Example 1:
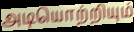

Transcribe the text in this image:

அடியொற்றியும்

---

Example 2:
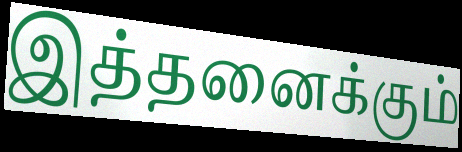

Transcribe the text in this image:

இத்தனைக்கும்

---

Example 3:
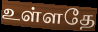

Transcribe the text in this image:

உள்ளதே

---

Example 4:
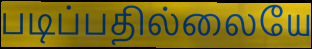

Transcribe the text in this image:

படிப்பதில்லையே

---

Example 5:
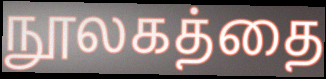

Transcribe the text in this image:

நூலகத்தை